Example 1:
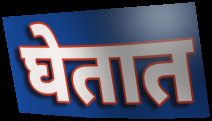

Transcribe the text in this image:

घेतात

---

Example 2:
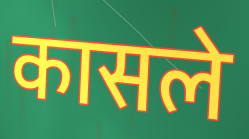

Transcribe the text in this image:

कासले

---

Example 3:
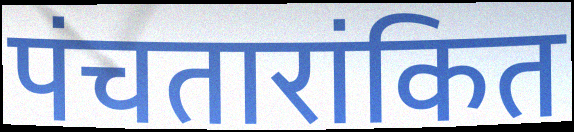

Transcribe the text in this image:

पंचतारांकित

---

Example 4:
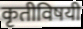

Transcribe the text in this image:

कृतीविषयी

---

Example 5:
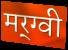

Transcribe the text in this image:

मर्ग्वी